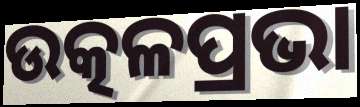
ଉତ୍କଳପ୍ରଭା